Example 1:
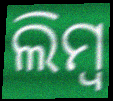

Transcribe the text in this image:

ଲିମ୍ବ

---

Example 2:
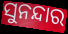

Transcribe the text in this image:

ସୁନନ୍ଦାର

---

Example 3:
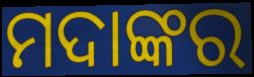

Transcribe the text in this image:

ମଦାଙ୍କର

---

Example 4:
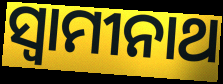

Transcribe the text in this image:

ସ୍ୱାମୀନାଥ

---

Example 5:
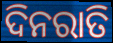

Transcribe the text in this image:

ଦିନରାତି